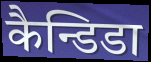
कैन्डिडा